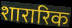
शारारिक